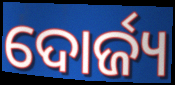
ଦୋର୍ଜ୍ୟ